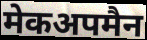
मेकअपमैन